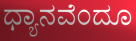
ಧ್ಯಾನವೆಂದೂ